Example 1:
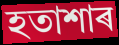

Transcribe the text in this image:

হতাশাৰ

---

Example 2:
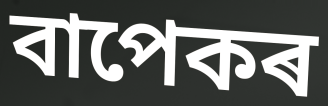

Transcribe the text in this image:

বাপেকৰ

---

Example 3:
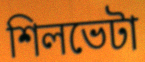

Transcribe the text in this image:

শিলভেটা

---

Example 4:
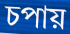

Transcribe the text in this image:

চপায়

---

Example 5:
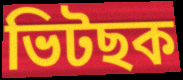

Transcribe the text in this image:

ভিটছক